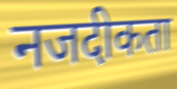
नजदीकता